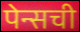
पेन्सची